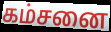
கம்சனை